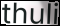
thuli